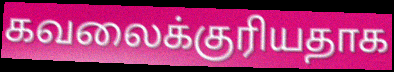
கவலைக்குரியதாக